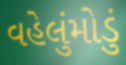
વહેલુંમોડું